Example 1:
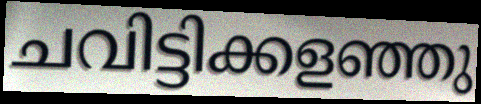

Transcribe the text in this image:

ചവിട്ടിക്കളഞ്ഞു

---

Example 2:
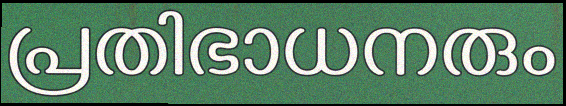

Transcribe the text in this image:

പ്രതിഭാധനരും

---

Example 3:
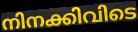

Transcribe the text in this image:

നിനക്കിവിടെ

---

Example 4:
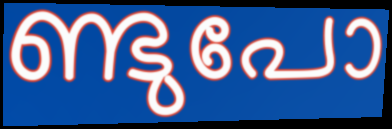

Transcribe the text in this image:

ണ്ടുപോ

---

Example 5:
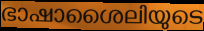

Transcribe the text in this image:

ഭാഷാശൈലിയുടെ